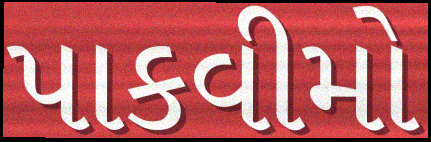
પાકવીમો